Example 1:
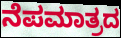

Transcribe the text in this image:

ನೆಪಮಾತ್ರದ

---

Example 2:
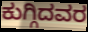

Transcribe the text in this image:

ಕುಗ್ಗಿದವರ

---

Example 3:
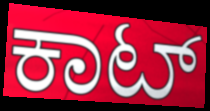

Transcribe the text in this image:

ಕಾಟ್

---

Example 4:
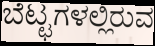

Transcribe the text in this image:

ಬೆಟ್ಟಗಳಲ್ಲಿರುವ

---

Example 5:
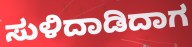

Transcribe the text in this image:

ಸುಳಿದಾಡಿದಾಗ